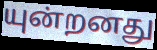
யுன்றனது